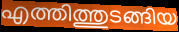
എത്തിത്തുടങ്ങിയ